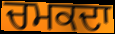
ਚਮਕਦਾ